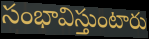
సంభావిస్తుంటారు